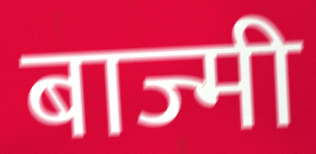
बाज्मी